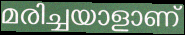
മരിച്ചയാളാണ്